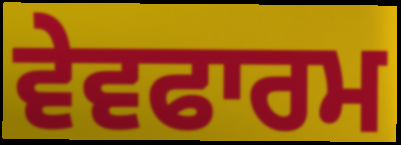
ਵੇਵਫਾਰਮ